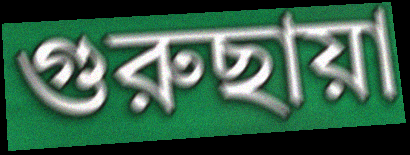
গুরুছায়া